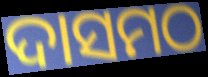
ଦାସମଠ